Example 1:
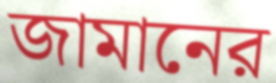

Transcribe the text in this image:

জামানের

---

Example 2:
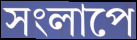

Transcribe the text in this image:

সংলাপে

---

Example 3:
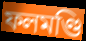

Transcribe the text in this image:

ফলমণ্ডি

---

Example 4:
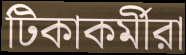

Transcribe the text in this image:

টিকাকর্মীরা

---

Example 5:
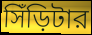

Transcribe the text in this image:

সিঁড়িটার